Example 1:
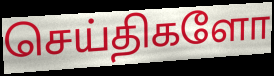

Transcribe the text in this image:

செய்திகளோ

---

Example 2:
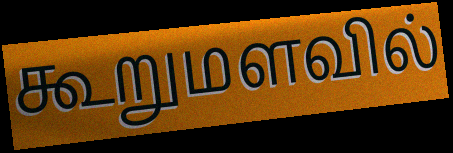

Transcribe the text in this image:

கூறுமளவில்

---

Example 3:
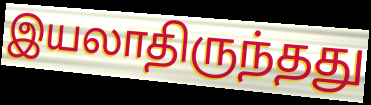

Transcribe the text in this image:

இயலாதிருந்தது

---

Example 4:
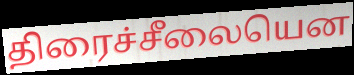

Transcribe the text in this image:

திரைச்சீலையென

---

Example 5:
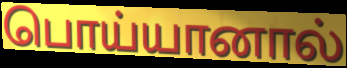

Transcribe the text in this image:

பொய்யானால்